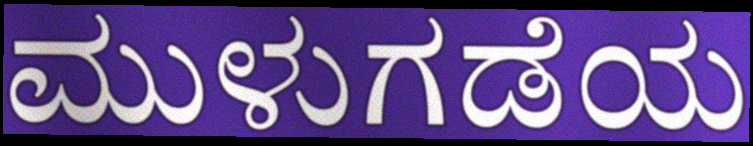
ಮುಳುಗಡೆಯ